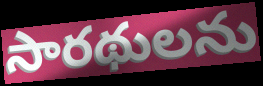
సారథులను